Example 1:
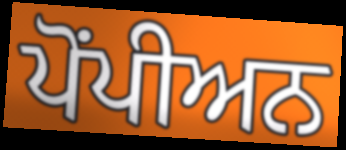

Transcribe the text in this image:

ਪੋਂਪੀਅਨ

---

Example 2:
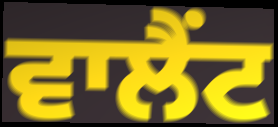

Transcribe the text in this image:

ਵਾਲੈਂਟ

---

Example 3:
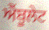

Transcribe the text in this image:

ਐਂਬੂਲੇਟ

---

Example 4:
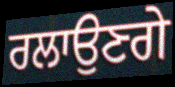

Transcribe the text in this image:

ਰਲਾਉਣਗੇ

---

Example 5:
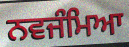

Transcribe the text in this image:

ਨਵਜੰਮਿਆ